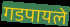
गडपायले